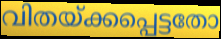
വിതയ്ക്കപ്പെട്ടതോ